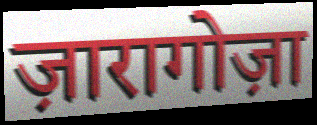
ज़ारागोज़ा